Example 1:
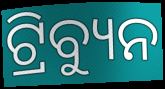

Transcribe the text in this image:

ଟ୍ରିବ୍ୟୁନ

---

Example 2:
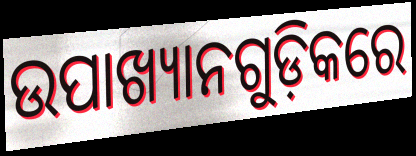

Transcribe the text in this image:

ଉପାଖ୍ୟାନଗୁଡ଼ିକରେ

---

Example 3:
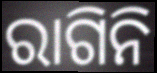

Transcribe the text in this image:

ରାଗିନି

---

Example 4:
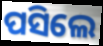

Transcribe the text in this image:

ପସିଲେ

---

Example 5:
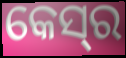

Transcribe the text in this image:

କେସ୍‌ର